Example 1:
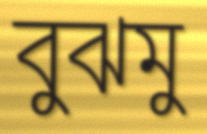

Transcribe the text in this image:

বুঝমু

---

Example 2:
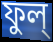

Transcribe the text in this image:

ফুল্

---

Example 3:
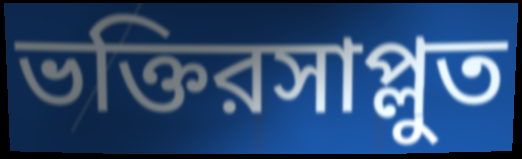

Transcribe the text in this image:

ভক্তিরসাপ্লুত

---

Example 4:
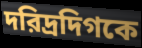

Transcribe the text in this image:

দরিদ্রদিগকে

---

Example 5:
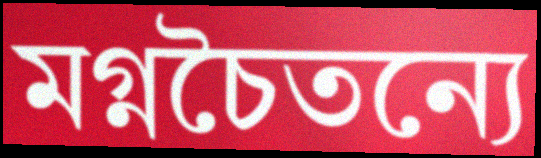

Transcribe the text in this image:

মগ্নচৈতন্যে